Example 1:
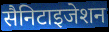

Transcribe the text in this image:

सैनिटाइजेशन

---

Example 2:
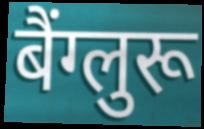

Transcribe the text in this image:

बैंग्लुरू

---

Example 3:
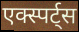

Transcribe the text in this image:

एक्स्पर्ट्स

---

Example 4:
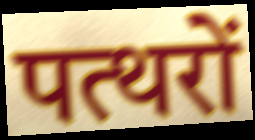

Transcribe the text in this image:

पत्‍थरों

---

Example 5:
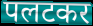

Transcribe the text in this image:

पलटकर